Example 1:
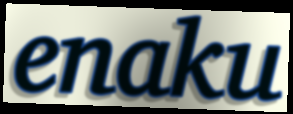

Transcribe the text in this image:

enaku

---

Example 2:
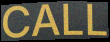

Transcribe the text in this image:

CALL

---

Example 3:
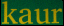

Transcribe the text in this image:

kaur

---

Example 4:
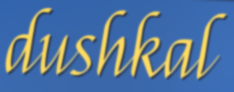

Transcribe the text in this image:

dushkal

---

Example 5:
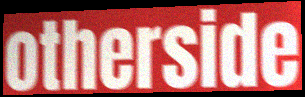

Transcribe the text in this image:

otherside